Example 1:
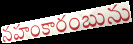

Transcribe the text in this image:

నహంకారంబును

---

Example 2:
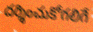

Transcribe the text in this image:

దర్శించుకోగలిగే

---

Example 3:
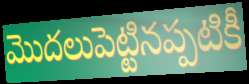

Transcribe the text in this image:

మొదలుపెట్టినప్పటికీ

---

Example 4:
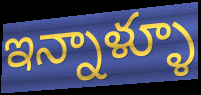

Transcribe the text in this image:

ఇన్నాళ్ళూ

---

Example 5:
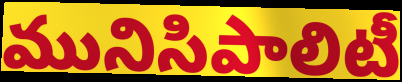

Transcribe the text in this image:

మునిసిపాలిటీ